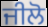
ਜੀਲੋ